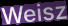
Weisz